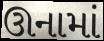
ઊનામાં